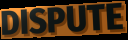
DISPUTE